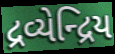
દ્રવ્યેન્દ્રિય